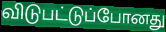
விடுபட்டுப்போனது